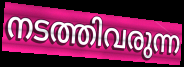
നടത്തിവരുന്ന